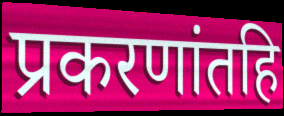
प्रकरणांतहि